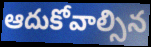
ఆదుకోవాల్సిన